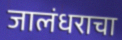
जालंधराचा